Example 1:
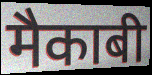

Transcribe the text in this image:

मैकाबी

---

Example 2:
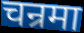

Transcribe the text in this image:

चन्रमा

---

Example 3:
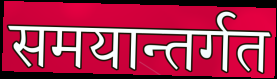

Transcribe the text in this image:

समयान्तर्गत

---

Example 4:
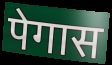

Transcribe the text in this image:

पेगास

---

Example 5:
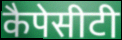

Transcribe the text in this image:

कैपेसीटी